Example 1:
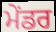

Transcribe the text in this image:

ਮੇਂਡਰ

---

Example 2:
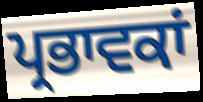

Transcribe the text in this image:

ਪ੍ਰਭਾਵਕਾਂ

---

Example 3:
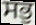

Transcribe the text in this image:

ਸਭੁ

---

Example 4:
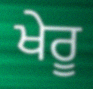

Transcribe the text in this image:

ਖੇਰੂ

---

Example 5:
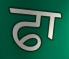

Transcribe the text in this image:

ਫਾ